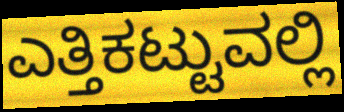
ಎತ್ತಿಕಟ್ಟುವಲ್ಲಿ